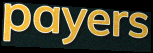
payers